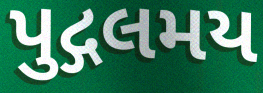
પુદ્ગલમય